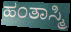
ಹಂತಾಸ್ಮಿ